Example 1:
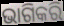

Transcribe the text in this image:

ଭାଗିକରି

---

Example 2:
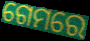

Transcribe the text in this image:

ଗେମରେ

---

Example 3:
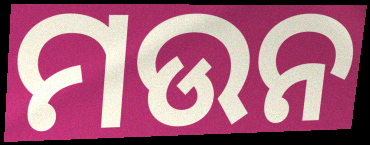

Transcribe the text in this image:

ମଉନ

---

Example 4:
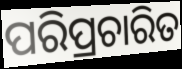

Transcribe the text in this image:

ପରିପ୍ରଚାରିତ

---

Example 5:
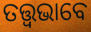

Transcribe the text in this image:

ତତ୍ତ୍ଵଭାବେ